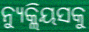
ନ୍ୟୁକ୍ଲିୟସକୁ